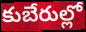
కుబేరుల్లో